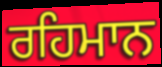
ਰਹਿਮਾਨ